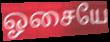
ஓசையே